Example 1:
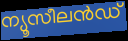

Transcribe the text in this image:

ന്യൂസീലൻഡ്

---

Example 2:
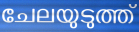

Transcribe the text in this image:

ചേലയുടുത്ത്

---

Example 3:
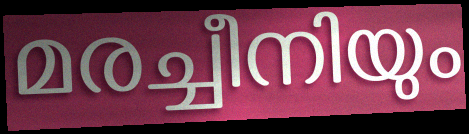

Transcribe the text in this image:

മരച്ചീനിയും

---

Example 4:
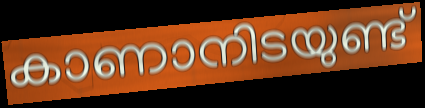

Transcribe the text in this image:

കാണാനിടയുണ്ട്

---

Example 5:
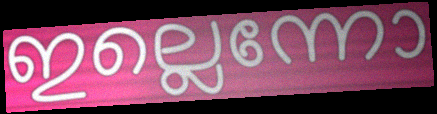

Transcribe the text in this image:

ഇല്ലെന്നോ